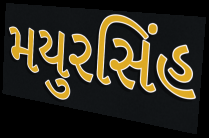
મયુરસિંહ